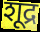
शूद्र